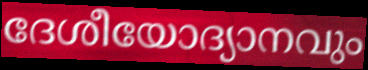
ദേശീയോദ്യാനവും